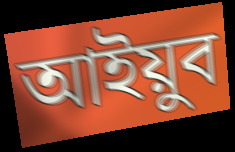
আইয়ুব